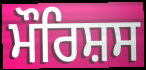
ਮੌਰਿਸ਼ਸ